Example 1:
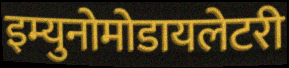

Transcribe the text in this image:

इम्युनोमोडायलेटरी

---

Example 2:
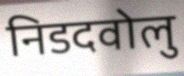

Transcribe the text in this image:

निडदवोलु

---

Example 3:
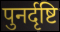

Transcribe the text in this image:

पुनर्दृष्टि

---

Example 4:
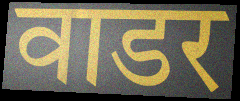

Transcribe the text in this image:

वाडर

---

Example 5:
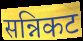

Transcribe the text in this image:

सन्निकट